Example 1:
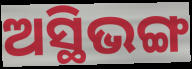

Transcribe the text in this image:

ଅସ୍ଥିଭଙ୍ଗ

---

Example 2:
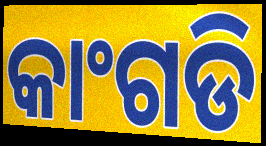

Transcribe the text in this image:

କାଂଗଡି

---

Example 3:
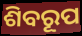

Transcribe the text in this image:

ଶିବରୂପ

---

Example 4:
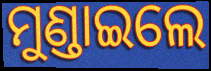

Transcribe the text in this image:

ମୁଣ୍ଡାଇଲେ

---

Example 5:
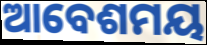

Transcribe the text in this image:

ଆବେଶମୟ